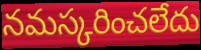
నమస్కరించలేదు